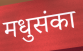
मधुसंका